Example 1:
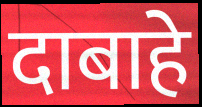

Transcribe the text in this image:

दाबाहे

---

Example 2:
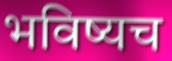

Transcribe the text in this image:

भविष्यच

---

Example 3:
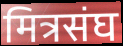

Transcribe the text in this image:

मित्रसंघ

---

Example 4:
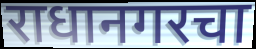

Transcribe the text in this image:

राधानगरचा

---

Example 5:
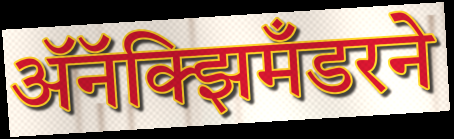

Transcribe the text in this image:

ॲनॅक्झिमँडरने